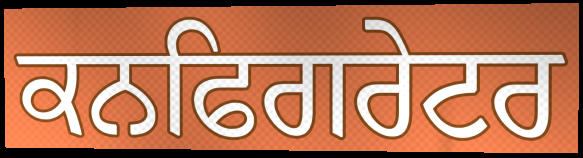
ਕਨਫਿਗਰੇਟਰ